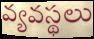
వ్యవస్థలు